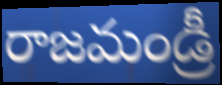
రాజమండ్రీ